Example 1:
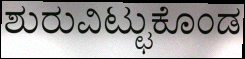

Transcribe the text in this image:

ಶುರುವಿಟ್ಟುಕೊಂಡ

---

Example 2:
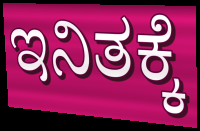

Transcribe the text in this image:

ಇನಿತಕ್ಕೆ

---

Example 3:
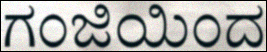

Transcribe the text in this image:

ಗಂಜಿಯಿಂದ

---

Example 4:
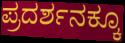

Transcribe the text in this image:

ಪ್ರದರ್ಶನಕ್ಕೂ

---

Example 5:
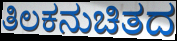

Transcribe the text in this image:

ತಿಲಕನುಚಿತದ